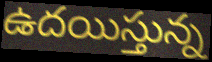
ఉదయిస్తున్న